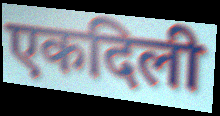
एकदिली